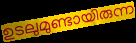
ഉടലുമുണ്ടായിരുന്ന